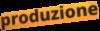
produzione